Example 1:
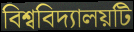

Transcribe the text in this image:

বিশ্ববিদ্যালয়টি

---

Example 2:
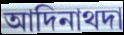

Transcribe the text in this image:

আদিনাথদা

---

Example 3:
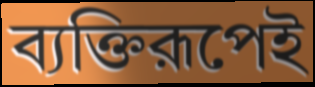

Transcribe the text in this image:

ব্যক্তিরূপেই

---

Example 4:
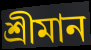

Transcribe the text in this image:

শ্রীমান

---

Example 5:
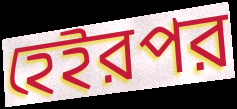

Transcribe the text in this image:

হেইরপর